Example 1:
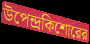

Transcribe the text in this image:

উপেন্দ্রকিশোরের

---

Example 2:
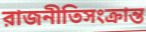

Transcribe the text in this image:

রাজনীতিসংক্রান্ত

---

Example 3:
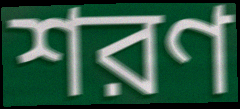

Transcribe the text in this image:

শরণ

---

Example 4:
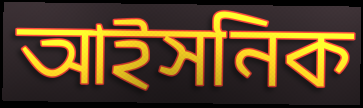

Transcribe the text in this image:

আইসনিক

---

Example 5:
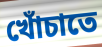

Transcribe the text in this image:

খোঁচাতে